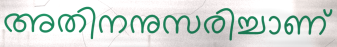
അതിനനുസരിച്ചാണ്